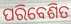
ପରିବେଶିତ